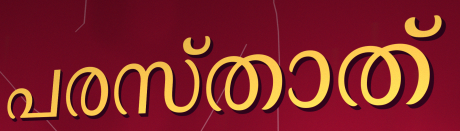
പരസ്താത്